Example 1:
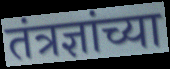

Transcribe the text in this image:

तंत्रज्ञांच्या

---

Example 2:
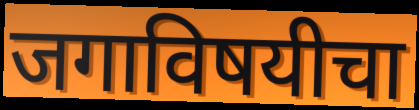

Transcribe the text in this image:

जगाविषयीचा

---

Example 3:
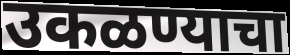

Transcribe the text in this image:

उकळण्याचा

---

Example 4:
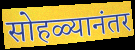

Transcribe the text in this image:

सोहळ्यानंतर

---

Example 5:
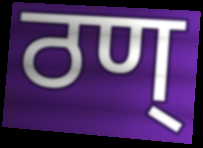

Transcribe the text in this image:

ठण्